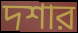
দশার